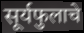
सूर्यफुलाचे